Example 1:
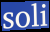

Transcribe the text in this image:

soli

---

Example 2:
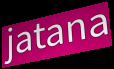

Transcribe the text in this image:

jatana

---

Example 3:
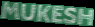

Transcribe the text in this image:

MUKESH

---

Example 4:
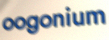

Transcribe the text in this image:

oogonium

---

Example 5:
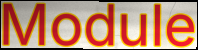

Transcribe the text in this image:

Module